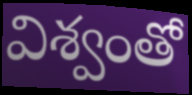
విశ్వంతో